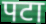
पटा